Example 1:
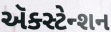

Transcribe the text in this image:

ઍક્સ્ટેન્શન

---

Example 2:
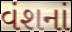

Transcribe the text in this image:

વંશનાં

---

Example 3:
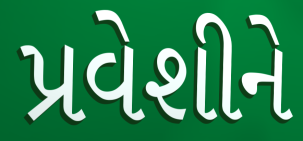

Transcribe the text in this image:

પ્રવેશીને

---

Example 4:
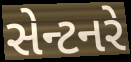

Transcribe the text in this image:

સેન્ટનરે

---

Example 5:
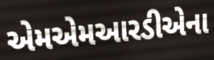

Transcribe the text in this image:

એમએમઆરડીએના